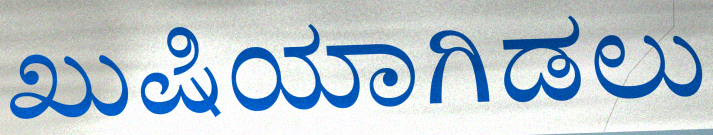
ಖುಷಿಯಾಗಿಡಲು